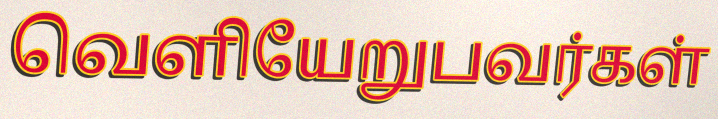
வெளியேறுபவர்கள்